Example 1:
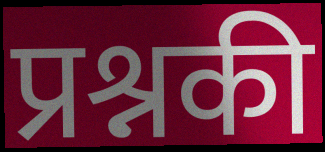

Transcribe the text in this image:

प्रश्नकी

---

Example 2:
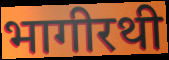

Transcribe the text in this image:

भागीरथी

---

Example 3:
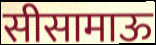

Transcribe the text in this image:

सीसामाऊ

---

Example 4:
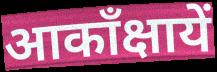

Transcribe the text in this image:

आकाँक्षायें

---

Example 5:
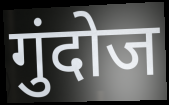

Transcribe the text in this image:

गुंदोज